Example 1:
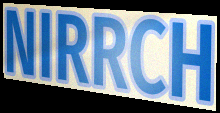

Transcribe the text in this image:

NIRRCH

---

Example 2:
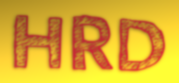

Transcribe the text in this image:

HRD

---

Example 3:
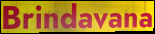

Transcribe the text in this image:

Brindavana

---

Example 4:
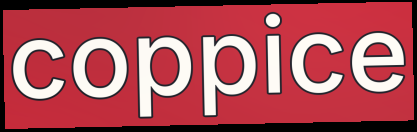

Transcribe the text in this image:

coppice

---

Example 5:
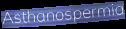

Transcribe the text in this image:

Asthanospermia